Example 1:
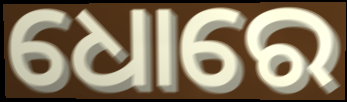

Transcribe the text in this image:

ଧୋରେ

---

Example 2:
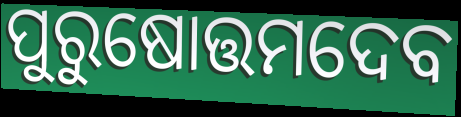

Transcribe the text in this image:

ପୁରୁଷୋତ୍ତମଦେବ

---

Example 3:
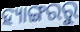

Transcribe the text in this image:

ହ୍ୟାଙ୍ଗରରୁ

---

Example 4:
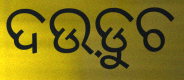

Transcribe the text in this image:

ଦଉଡ଼ୁଚ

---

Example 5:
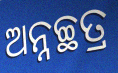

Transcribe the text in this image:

ଅନ୍ନଚ୍ଛତ୍ର